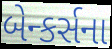
બેન્કર્સના